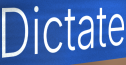
Dictate